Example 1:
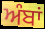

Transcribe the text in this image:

ਅੰਬਾਂ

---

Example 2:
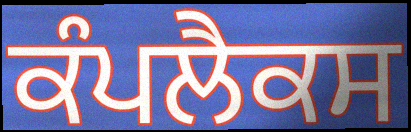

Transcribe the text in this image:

ਕੰਪਲੈਕਸ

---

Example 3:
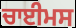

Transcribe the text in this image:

ਚਾਈਮਸ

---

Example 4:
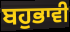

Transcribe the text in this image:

ਬਹੁਭਾਵੀ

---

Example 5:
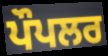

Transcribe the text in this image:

ਪੌਪਲਰ